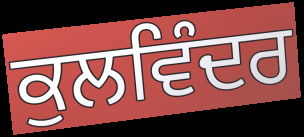
ਕੁਲਵਿੰਦਰ